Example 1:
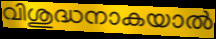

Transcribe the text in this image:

വിശുദ്ധനാകയാൽ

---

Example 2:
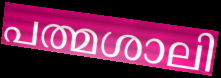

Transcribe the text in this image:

പത്മശാലി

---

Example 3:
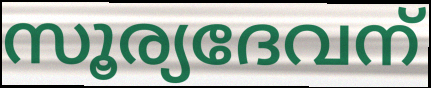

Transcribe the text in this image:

സൂര്യദേവന്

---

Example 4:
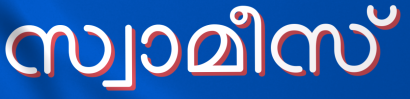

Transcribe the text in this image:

സ്വാമീസ്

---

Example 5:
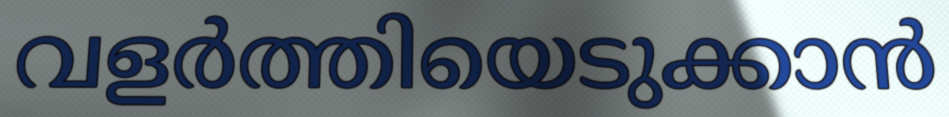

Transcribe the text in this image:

വളർത്തിയെടുക്കാൻ